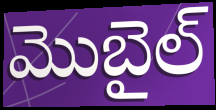
మొబైల్